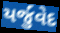
યર્જુવેદ